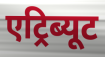
एट्रिब्यूट